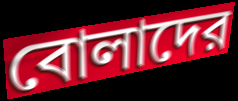
বোলাদের